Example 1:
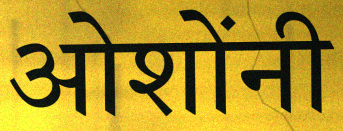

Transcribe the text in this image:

ओशोंनी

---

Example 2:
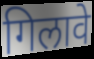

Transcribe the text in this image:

गिलावे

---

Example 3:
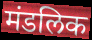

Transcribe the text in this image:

मंडलिक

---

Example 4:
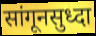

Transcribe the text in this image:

सांगूनसुध्दा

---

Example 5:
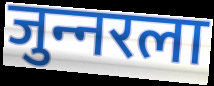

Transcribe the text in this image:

जुन्नरला